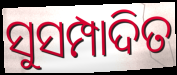
ସୁସମ୍ପାଦିତ